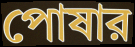
পোষার